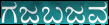
ಗಜಬಜವ